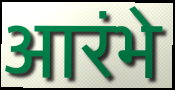
आरंभे